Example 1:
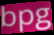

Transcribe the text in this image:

bpg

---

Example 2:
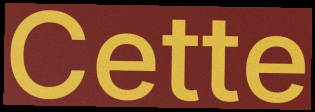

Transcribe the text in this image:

Cette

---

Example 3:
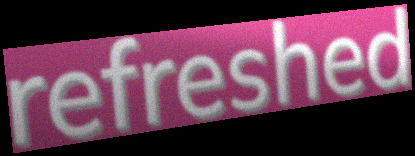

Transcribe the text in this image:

refreshed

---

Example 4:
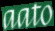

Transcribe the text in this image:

aato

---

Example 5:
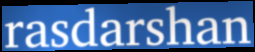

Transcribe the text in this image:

rasdarshan